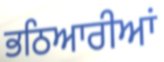
ਭਠਿਆਰੀਆਂ